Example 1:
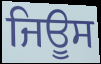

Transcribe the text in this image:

ਜਿਊਸ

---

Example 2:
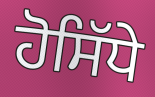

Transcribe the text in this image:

ਹੋਸਿੱਧੇ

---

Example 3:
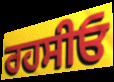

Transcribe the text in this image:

ਰਹਸੀਓ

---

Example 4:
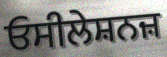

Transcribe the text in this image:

ਓਸੀਲੇਸ਼ਨਜ਼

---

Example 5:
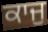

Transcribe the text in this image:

ਕਾਜੁ